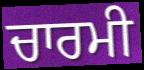
ਚਾਰਮੀ